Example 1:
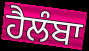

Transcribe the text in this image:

ਹੈਲੰਬਾ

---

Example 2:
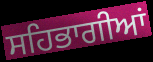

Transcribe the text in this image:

ਸਹਿਭਾਗੀਆਂ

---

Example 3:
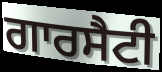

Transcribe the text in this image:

ਗਾਰਸੈਟੀ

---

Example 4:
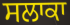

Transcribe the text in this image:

ਸਲਾਕਾ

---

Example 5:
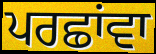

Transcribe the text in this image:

ਪਰਛਾਂਵਾ